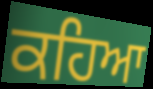
ਕਹਿਆ